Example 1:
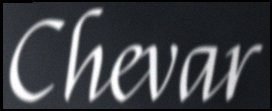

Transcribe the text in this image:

Chevar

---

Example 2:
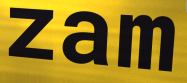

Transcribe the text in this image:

zam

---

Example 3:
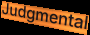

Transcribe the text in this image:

Judgmental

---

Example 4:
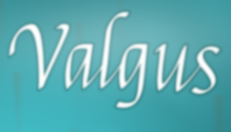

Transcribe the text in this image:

Valgus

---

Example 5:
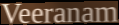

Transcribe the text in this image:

Veeranam